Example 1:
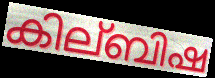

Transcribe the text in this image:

കില്ബിഷ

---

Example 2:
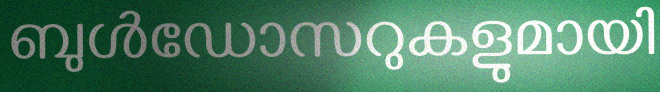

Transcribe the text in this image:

ബുൾഡോസറുകളുമായി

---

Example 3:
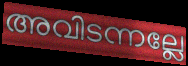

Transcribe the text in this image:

അവിടന്നല്ലേ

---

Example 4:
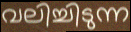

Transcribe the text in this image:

വലിച്ചിടുന്ന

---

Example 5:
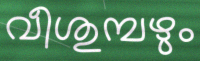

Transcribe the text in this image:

വീശുമ്പഴും